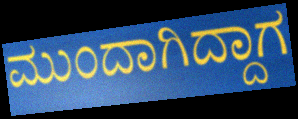
ಮುಂದಾಗಿದ್ದಾಗ